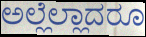
ಅಲ್ಲೆಲ್ಲಾದರೂ